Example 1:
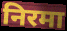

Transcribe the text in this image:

निरमा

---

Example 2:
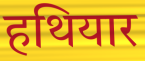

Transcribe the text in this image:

हथियार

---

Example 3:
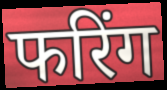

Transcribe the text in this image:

फरिंग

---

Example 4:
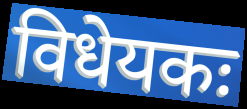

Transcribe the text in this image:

विधेयकः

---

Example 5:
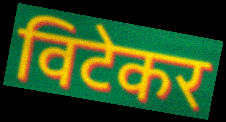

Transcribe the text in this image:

विटेकर